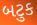
બટુક